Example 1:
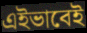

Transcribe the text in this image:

এইভাবেই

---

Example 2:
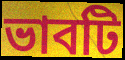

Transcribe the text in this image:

ভাবটি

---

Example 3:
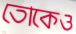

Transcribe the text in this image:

তোকেও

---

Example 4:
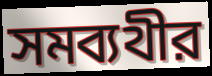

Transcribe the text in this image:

সমব্যথীর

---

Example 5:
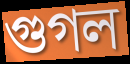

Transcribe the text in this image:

গুগল